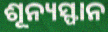
ଶୂନ୍ୟସ୍ଫାନ